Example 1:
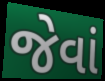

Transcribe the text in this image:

જેવાં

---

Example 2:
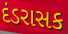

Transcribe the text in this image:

દંડરાસક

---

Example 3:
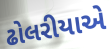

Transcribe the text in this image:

ઢોલરીયાએ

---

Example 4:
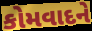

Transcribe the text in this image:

કોમવાદને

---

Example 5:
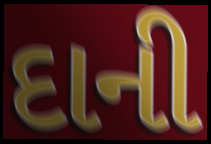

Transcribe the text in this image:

દાની